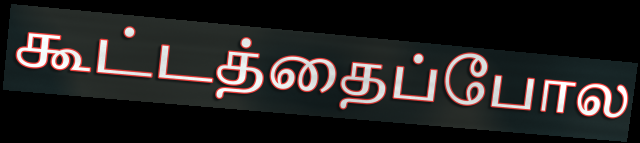
கூட்டத்தைப்போல